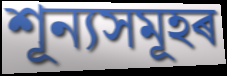
শূন্যসমূহৰ